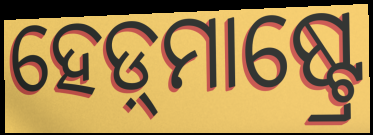
ହେଡ଼୍‍ମାଷ୍ଟ୍ରେ